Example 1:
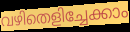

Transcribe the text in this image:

വഴിതെളിച്ചേക്കാം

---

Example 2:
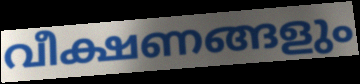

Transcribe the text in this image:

വീക്ഷണങ്ങളും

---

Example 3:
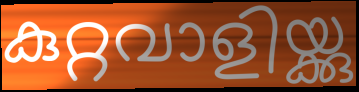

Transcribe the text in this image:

കുറ്റവാളിയ്ക്കു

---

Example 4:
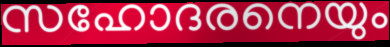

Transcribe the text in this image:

സഹോദരനെയും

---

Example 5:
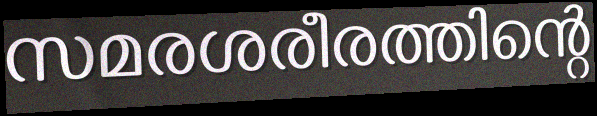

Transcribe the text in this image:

സമരശരീരത്തിന്റെ